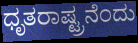
ಧೃತರಾಷ್ಟ್ರನೆಂದು